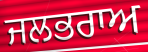
ਜਲਭਰਾਅ